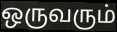
ஒருவரும்